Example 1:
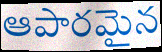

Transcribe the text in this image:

ఆపారమైన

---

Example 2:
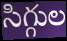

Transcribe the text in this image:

సిగ్గుల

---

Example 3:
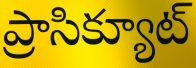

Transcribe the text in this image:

ప్రాసిక్యూట్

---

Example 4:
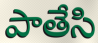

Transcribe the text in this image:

పాతేసి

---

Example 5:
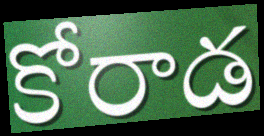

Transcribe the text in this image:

కోరాడ